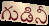
గుడినీ